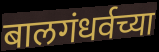
बालगंधर्वच्या